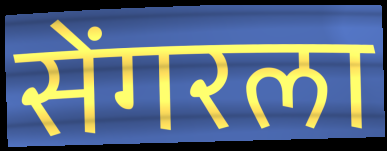
सेंगरला